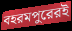
বহরমপুরেরই